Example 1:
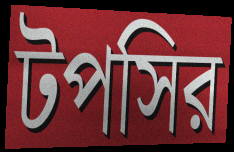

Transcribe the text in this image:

টপসির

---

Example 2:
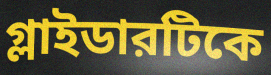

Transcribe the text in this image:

গ্লাইডারটিকে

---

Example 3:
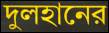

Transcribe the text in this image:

দুলহানের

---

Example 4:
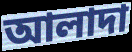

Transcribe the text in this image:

আলাদা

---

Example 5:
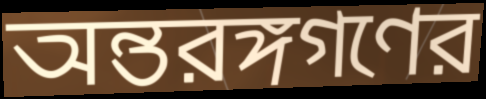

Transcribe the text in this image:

অন্তরঙ্গগণের